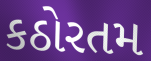
કઠોરતમ